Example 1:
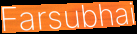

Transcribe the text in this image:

Farsubhai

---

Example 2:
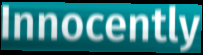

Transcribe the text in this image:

Innocently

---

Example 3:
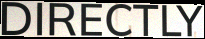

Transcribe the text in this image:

DIRECTLY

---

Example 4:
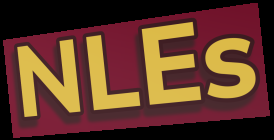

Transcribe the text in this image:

NLEs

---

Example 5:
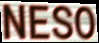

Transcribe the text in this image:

NESO